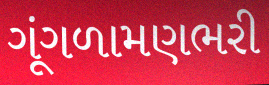
ગૂંગળામણભરી